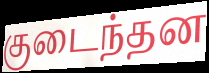
குடைந்தன